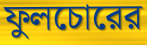
ফুলচোরের